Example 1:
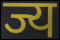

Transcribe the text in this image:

ज्य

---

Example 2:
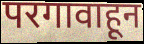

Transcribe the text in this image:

परगावाहून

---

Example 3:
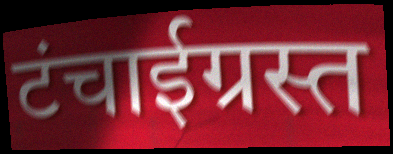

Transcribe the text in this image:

टंचाईग्रस्त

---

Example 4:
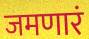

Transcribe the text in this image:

जमणारं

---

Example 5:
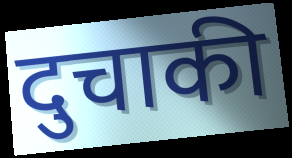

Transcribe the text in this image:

दुचाकी